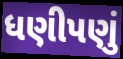
ધણીપણું